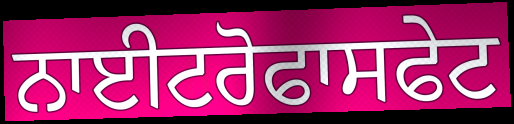
ਨਾਈਟਰੋਫਾਸਫੇਟ